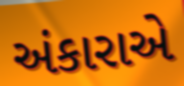
અંકારાએ